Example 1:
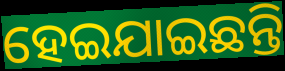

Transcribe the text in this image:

ହେଇଯାଇଛନ୍ତି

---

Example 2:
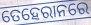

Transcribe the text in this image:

ତେହେରାନରେ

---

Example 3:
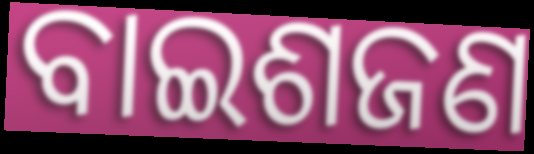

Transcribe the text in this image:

ବାଇଶଜଣ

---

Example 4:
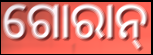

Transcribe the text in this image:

ଗୋରାନ୍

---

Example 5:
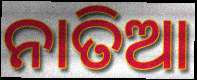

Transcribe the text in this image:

ନାତିଆ